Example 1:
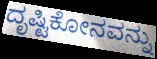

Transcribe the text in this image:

ದೃಷ್ಟಿಕೋನವನ್ನು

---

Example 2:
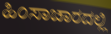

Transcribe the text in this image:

ಹಿಂಸಾಚಾರದಲ್ಲಿ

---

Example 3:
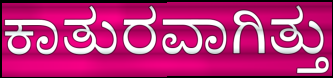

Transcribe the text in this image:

ಕಾತುರವಾಗಿತ್ತು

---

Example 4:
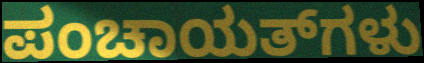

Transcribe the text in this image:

ಪಂಚಾಯತ್‌ಗಳು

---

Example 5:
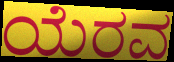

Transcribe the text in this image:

ಯೆರವ